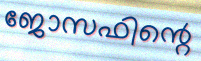
ജോസഫിന്റെ